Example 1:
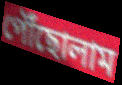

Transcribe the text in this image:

পৌঁছোলাম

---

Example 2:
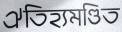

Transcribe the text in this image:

ঐতিহ্যমণ্ডিত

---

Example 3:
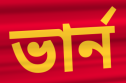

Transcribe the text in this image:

ভার্ন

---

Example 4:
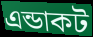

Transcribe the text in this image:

এন্ডাকট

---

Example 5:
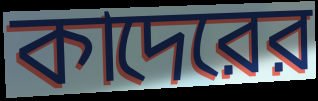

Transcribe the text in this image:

কাদেরের